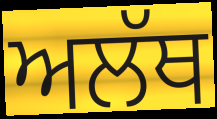
ਅਲੱਥ